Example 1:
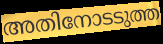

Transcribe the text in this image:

അതിനോടടുത്ത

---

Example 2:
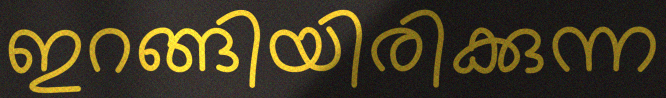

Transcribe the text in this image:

ഇറങ്ങിയിരിക്കുന്ന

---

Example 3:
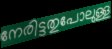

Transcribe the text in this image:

നേരിട്ടതുപോലുള്ള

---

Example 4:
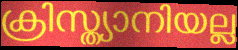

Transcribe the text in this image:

ക്രിസ്ത്യാനിയല്ല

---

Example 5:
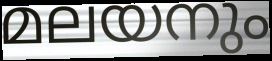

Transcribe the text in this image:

മലയനും